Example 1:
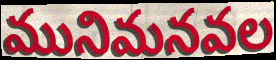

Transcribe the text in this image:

మునిమనవల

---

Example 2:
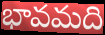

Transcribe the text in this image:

భావమది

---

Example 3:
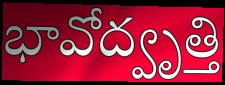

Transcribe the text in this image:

భావోద్వృత్తి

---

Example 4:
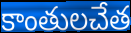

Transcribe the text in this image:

కాంతులచేత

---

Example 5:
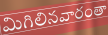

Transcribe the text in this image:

మిగిలినవారంతా